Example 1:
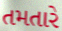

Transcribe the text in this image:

તમતારે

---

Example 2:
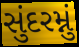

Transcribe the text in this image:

સુંદરમ્નું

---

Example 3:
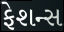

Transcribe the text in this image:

ફેશન્સ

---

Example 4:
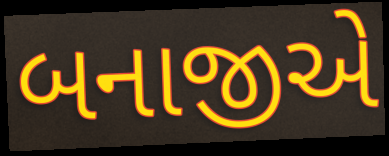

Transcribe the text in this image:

બનાજીએ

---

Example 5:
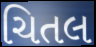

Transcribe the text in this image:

ચિતલ